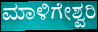
ಮಾಳಿಗೇಶ್ವರಿ